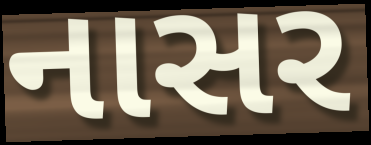
નાસર